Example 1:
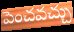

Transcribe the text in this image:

పెంచవచ్చు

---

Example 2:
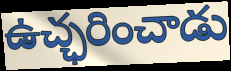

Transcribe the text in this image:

ఉచ్ఛరించాడు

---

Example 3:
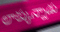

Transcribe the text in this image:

లాక్కున్నాడు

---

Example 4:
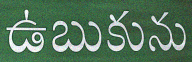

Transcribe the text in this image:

ఉబుకును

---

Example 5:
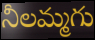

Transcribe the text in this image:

నీలమ్మగు